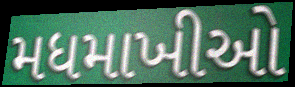
મધમાખીઓ